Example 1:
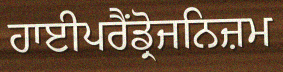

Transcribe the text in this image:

ਹਾਈਪਰੈਂਡ੍ਰੋਜਨਿਜ਼ਮ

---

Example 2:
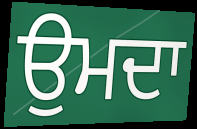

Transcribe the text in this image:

ਉਮਦਾ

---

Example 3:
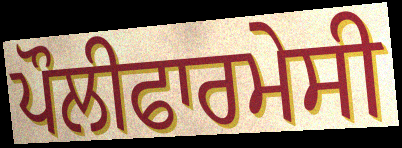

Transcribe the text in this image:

ਪੌਲੀਫਾਰਮੇਸੀ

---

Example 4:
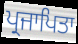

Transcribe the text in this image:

ਪ੍ਰਜਾਪਿਤਾ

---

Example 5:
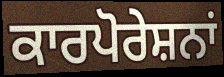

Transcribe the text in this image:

ਕਾਰਪੋਰੇਸ਼ਨਾਂ